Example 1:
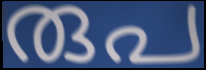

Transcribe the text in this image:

രുപ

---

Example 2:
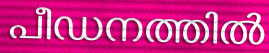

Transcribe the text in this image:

പീഡനത്തിൽ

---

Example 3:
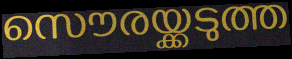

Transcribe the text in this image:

സൌരയ്ക്കടുത്ത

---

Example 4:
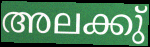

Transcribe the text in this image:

അലക്കു്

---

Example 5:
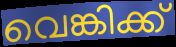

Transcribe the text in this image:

വെങ്കിക്ക്